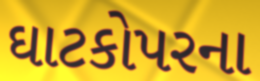
ઘાટકોપરના